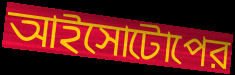
আইসোটোপের